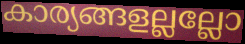
കാര്യങ്ങളല്ലല്ലോ